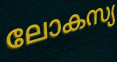
ലോകസ്യ